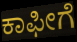
ಕಾಫೀಗೆ